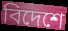
বিদেশে